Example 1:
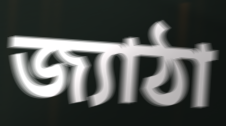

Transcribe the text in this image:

জ্যাঠা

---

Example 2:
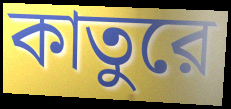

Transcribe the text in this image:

কাতুরে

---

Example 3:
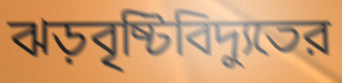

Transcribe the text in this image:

ঝড়বৃষ্টিবিদ্যুতের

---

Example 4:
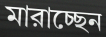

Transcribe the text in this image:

মারাচ্ছেন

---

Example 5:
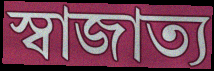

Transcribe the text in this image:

স্বাজাত্য